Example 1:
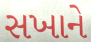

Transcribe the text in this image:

સખાને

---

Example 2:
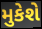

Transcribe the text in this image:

મુકેશે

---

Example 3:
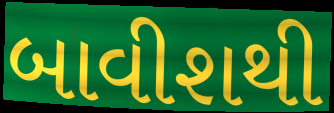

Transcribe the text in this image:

બાવીશથી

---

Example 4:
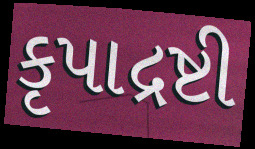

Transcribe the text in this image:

કૃપાદ્રષ્ટી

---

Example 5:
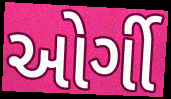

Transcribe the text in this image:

ઓર્ગી